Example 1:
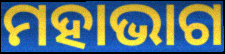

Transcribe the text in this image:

ମହାଭାଗ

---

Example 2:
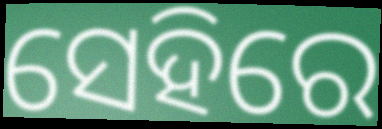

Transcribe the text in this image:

ସେହିରେ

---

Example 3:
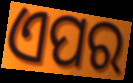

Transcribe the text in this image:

ଏପର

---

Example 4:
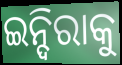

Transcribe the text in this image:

ଇନ୍ଦିରାକୁ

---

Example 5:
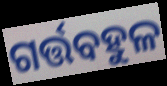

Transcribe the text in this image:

ଗର୍ତ୍ତବହୁଳ